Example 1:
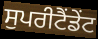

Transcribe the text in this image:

ਸੁਪਰੀਟੈਂਡੇਂਟ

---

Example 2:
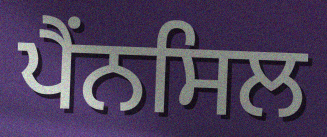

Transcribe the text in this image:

ਪੈਂਨਸਿਲ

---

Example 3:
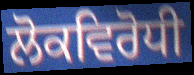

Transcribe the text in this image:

ਲੋਕਵਿਰੋਧੀ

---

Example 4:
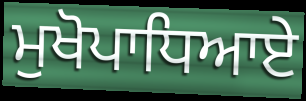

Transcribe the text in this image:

ਮੁਖੋਪਾਧਿਆਏ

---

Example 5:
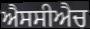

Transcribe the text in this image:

ਐਸਸੀਐਚ